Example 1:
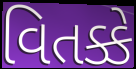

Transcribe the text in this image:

વિતક્કે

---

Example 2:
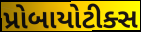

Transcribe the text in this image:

પ્રોબાયોટીક્સ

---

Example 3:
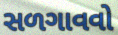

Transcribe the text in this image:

સળગાવવો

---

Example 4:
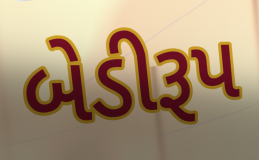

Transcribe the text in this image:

બેડીરૂપ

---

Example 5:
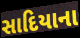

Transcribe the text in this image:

સાદિયાના